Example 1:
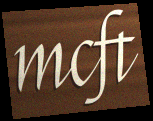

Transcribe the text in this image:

mcft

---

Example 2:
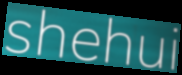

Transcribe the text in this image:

shehui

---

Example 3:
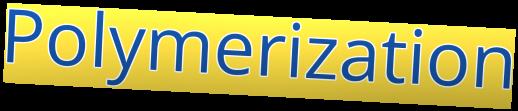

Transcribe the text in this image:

Polymerization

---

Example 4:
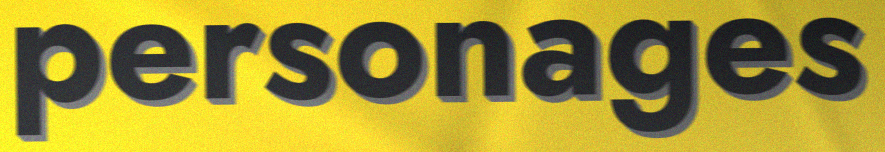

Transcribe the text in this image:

personages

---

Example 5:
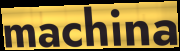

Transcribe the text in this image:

machina